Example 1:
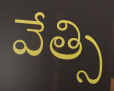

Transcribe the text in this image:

వేత్సి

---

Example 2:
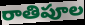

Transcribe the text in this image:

రాతిపూల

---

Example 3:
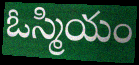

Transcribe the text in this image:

ఓస్మియం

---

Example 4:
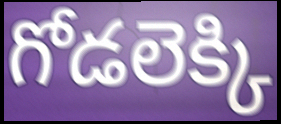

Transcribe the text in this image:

గోడలెక్కి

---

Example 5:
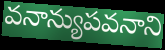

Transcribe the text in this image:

వనాన్యుపవనాని